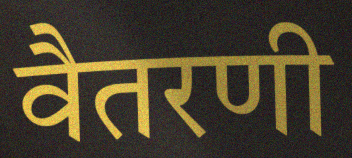
वैतरणी